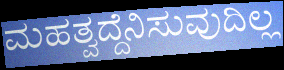
ಮಹತ್ವದ್ದೆನಿಸುವುದಿಲ್ಲ